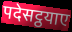
पदेसट्ठयाए